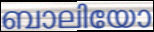
ബാലിയോ